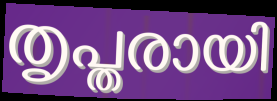
തൃപ്തരായി